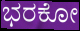
ಭರಕೋ